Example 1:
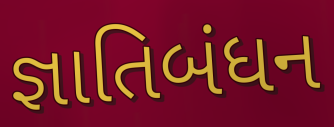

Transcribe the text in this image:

જ્ઞાતિબંધન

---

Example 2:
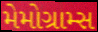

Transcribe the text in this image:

મેમોગ્રામ્સ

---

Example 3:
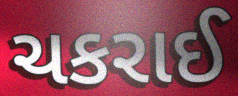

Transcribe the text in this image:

ચકરાઈ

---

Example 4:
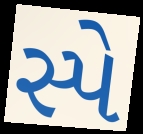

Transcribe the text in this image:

સ્પે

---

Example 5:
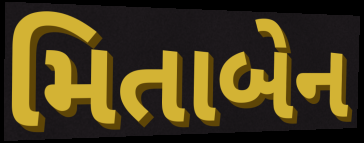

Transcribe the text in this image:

મિતાબેન